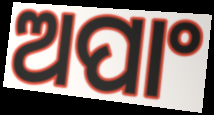
ଅପାଂ